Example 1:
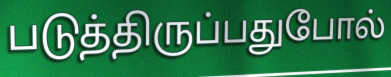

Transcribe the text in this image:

படுத்திருப்பதுபோல்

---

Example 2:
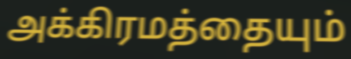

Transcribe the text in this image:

அக்கிரமத்தையும்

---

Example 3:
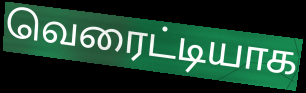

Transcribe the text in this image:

வெரைட்டியாக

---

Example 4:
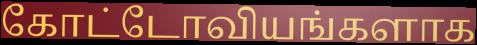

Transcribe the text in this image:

கோட்டோவியங்களாக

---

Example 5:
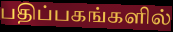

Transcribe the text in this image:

பதிப்பகங்களில்